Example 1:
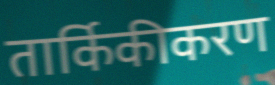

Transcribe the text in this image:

तार्किकीकरण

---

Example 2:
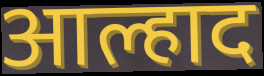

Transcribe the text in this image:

आल्हाद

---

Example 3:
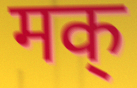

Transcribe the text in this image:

मक्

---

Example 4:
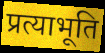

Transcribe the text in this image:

प्रत्याभूति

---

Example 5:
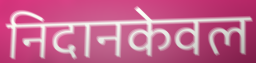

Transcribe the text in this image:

निदानकेवल